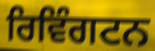
ਰਿਵਿੰਗਟਨ